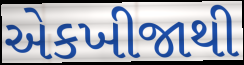
એકખીજાથી